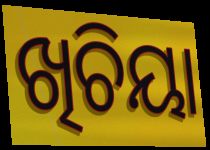
ଖିଚିୟା